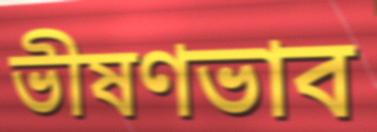
ভীষণভাব